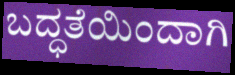
ಬದ್ಧತೆಯಿಂದಾಗಿ